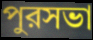
পুরসভা